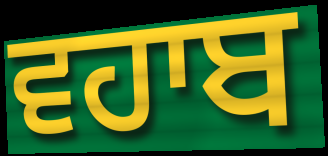
ਵਹਾਬ